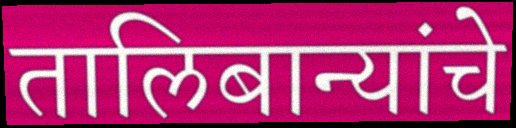
तालिबान्यांचे